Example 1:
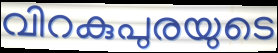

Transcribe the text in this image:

വിറകുപുരയുടെ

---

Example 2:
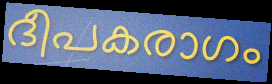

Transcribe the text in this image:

ദീപകരാഗം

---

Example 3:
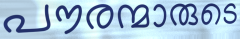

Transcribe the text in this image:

പൗരന്മാരുടെ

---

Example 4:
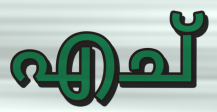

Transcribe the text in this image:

എച്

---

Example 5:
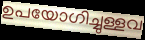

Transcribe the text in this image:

ഉപയോഗിച്ചുള്ളവ